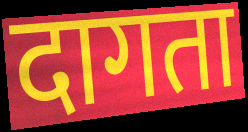
दागता